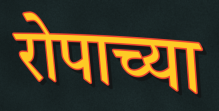
रोपाच्या